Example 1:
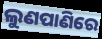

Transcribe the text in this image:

ଲୁଣପାଣିରେ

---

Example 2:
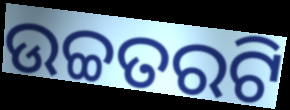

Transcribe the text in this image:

ଉଚ୍ଚତରଟି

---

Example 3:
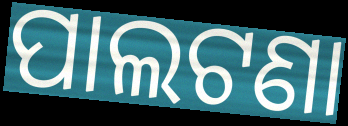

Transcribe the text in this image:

ପାଲଟଣା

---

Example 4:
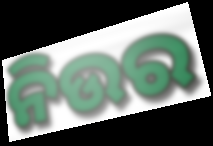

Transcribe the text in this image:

ନିଉର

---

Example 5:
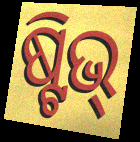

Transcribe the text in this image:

ଷ୍ଟିଭ୍